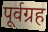
पूर्वग्रह